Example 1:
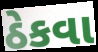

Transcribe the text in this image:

ઠેકવા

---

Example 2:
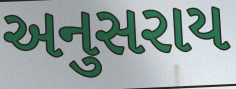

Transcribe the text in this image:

અનુસરાય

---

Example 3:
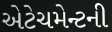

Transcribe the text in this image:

એટેચમેન્ટની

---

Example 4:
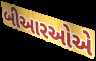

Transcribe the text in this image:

બીઆરઓએ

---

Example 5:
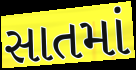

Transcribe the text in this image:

સાતમાં